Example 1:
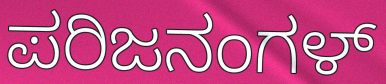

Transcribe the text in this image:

ಪರಿಜನಂಗಳ್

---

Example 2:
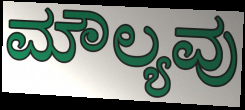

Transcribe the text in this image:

ಮೌಲ್ಯವು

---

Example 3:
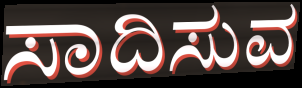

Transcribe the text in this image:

ಸಾದಿಸುವ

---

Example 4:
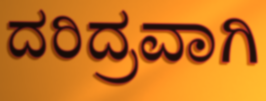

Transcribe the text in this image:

ದರಿದ್ರವಾಗಿ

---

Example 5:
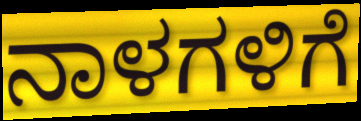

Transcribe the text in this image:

ನಾಳಗಳಿಗೆ